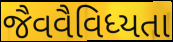
જૈવવૈવિધ્યતા